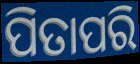
ପିତାପରି